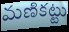
మణికట్టు